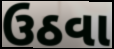
ઉઠવા